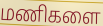
மணிகளை